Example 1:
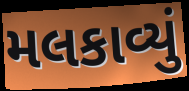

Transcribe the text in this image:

મલકાવ્યું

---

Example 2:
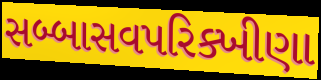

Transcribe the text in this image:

સબ્બાસવપરિક્ખીણા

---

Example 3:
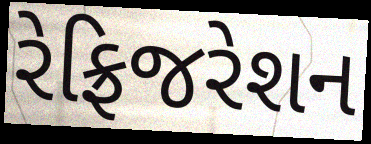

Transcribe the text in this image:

રેફ્રિજરેશન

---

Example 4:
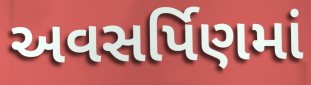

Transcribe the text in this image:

અવસર્પિણમાં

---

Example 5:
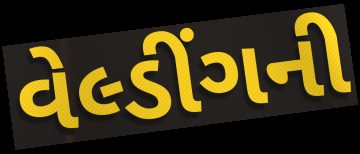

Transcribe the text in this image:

વેલ્ડીંગની